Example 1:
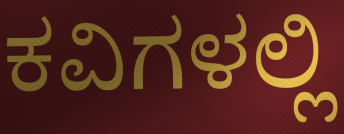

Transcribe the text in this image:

ಕವಿಗಳಲ್ಲಿ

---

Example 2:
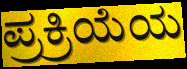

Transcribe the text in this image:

ಪ್ರಕ್ರಿಯೆಯ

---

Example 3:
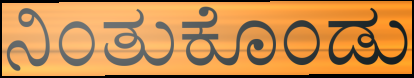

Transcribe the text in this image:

ನಿಂತುಕೊಂಡು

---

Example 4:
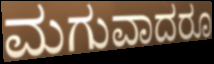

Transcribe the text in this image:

ಮಗುವಾದರೂ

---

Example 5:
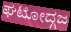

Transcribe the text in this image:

ಘಟೋದ್ಗಜ